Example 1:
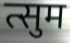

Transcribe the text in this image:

त्सुम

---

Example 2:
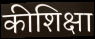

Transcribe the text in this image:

कीशिक्षा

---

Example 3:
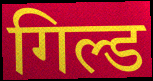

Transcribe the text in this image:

गिल्ड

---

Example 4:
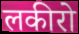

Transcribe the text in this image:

लकीरो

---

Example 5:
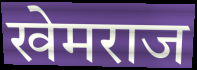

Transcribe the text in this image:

खेमराज